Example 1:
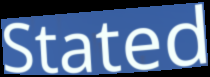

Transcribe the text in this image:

Stated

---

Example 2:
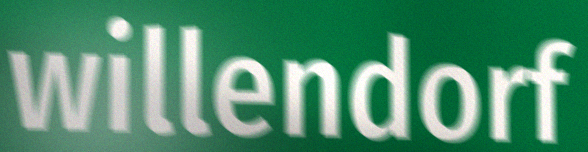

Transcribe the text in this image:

willendorf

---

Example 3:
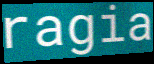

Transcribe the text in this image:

ragia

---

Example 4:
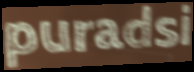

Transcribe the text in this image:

puradsi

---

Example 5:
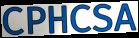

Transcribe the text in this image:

CPHCSA